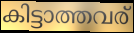
കിട്ടാത്തവര്